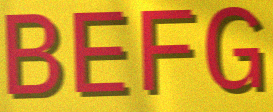
BEFG